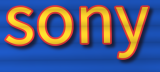
sony